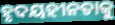
ହୃଦୟହୀନତାକୁ